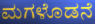
ಮಗಳೊಡನೆ